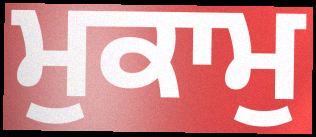
ਮੁਕਾਮੁ